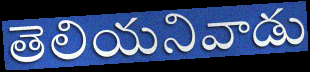
తెలియనివాడు